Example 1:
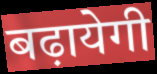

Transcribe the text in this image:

बढ़ायेगी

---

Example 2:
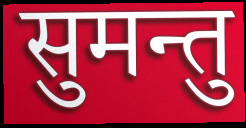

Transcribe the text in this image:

सुमन्तु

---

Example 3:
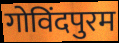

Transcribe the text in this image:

गोविंदपुरम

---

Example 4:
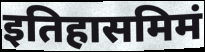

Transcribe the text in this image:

इतिहासमिमं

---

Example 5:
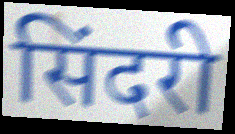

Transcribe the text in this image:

सिंदरी